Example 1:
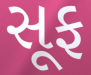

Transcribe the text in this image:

સૂફ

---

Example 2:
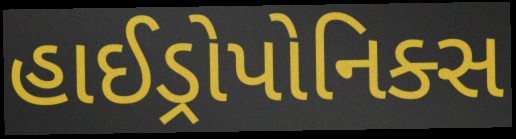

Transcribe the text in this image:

હાઈડ્રોપોનિક્સ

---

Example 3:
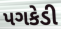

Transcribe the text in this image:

પગકેડી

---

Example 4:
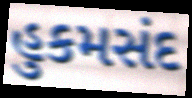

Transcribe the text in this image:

હુકમસંદ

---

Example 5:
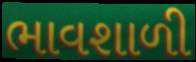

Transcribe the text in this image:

ભાવશાળી